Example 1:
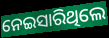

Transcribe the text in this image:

ନେଇସାରିଥିଲେ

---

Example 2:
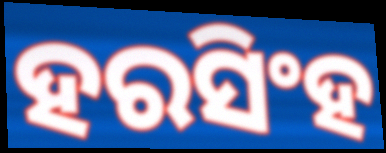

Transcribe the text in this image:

ହରସିଂହ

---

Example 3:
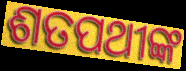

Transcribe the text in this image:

ଶତପଥୀଙ୍କ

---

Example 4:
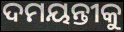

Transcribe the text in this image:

ଦମୟନ୍ତୀକୁ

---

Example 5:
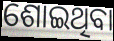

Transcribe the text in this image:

ଶୋଇଥିବା